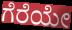
ಗೆರೆಯೇ